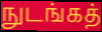
நுடங்கத்